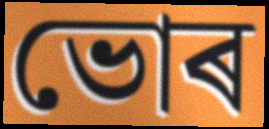
ভোৰ